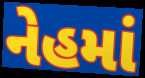
નેહમાં